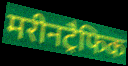
मरीनट्रैफिक